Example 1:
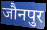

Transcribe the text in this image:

जौनपुर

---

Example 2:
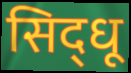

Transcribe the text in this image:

सिद्धू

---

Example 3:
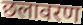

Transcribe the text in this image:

छलावरण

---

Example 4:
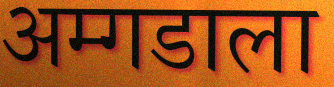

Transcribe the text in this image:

अम्गडाला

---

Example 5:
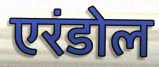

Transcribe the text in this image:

एरंडोल